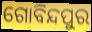
ଗୋବିନ୍ଦପୁର